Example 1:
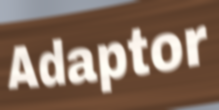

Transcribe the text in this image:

Adaptor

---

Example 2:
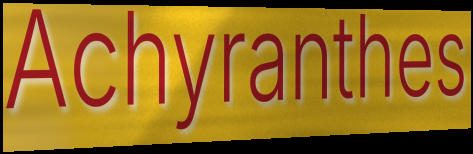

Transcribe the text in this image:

Achyranthes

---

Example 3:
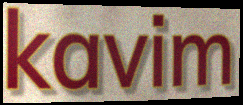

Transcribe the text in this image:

kavim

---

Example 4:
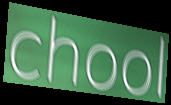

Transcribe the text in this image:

chool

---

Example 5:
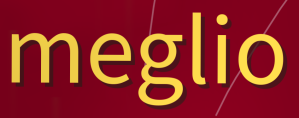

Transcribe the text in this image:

meglio